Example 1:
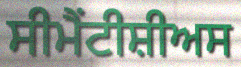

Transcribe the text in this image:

ਸੀਮੈਂਟੀਸ਼ੀਅਸ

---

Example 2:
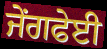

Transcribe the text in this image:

ਜੇਂਗਫੇਈ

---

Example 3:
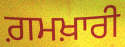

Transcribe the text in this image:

ਗ਼ਮਖ਼ਾਰੀ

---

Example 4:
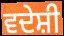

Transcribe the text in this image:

ਵਦੇਸ਼ੀ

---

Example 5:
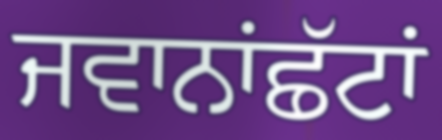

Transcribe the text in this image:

ਜਵਾਨਾਂਛੱਟਾਂ